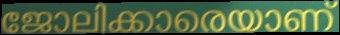
ജോലിക്കാരെയാണ്